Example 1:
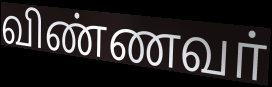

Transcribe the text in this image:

விண்ணவர்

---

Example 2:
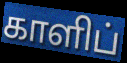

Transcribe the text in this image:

காளிப்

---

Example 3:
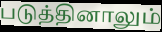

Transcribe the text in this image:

படுத்தினாலும்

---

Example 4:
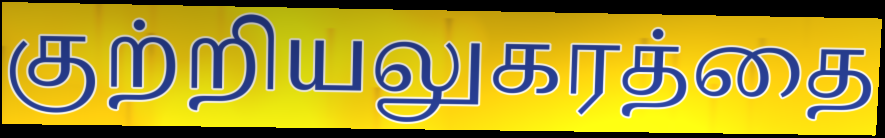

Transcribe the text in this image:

குற்றியலுகரத்தை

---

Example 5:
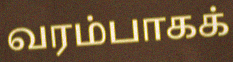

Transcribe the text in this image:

வரம்பாகக்